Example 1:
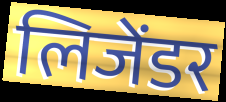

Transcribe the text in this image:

लिजेंडर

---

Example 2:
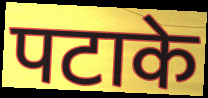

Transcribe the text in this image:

पटाके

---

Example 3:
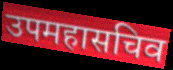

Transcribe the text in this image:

उपमहासचिव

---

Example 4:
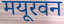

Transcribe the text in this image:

मयूरवन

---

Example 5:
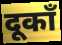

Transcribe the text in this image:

दूकाँ